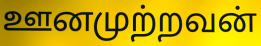
ஊனமுற்றவன்